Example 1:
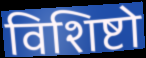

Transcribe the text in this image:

विशिष्टो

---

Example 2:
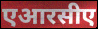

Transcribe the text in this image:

एआरसीए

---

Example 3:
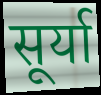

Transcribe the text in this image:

सूर्या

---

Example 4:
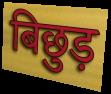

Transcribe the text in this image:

बिछुड़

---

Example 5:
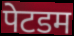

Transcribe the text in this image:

पेटडम